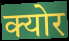
क्योर